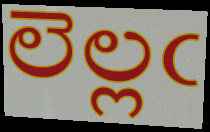
లెల్లఁ